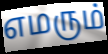
எமரும்